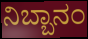
ನಿಬ್ಬಾನಂ